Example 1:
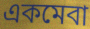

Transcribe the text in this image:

একমেবা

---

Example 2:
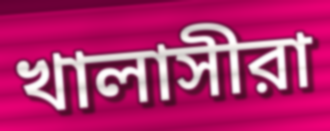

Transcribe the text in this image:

খালাসীরা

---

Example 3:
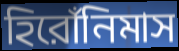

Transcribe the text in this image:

হিরোঁনিমাস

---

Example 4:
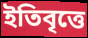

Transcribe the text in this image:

ইতিবৃত্তে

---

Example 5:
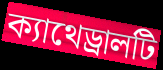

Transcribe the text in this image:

ক্যাথেড্রালটি